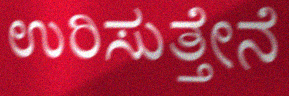
ಉರಿಸುತ್ತೇನೆ